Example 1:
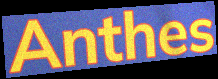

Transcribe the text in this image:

Anthes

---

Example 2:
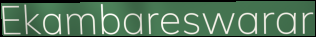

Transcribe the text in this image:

Ekambareswarar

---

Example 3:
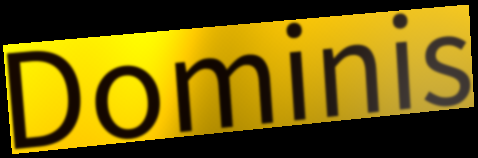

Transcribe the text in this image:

Dominis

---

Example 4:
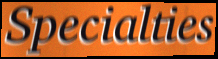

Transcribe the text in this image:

Specialties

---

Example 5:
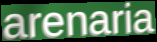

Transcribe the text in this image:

arenaria